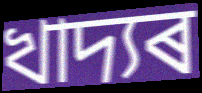
খাদ্যৰ